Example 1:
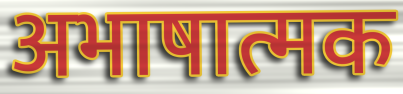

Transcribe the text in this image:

अभाषात्मक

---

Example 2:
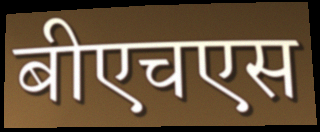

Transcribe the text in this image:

बीएचएस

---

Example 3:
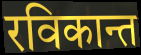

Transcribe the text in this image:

रविकान्त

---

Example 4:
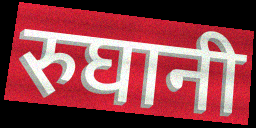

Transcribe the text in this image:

रुघानी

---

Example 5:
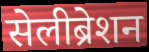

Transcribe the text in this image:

सेलीब्रेशन